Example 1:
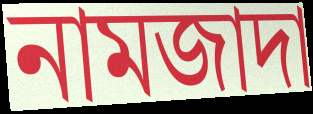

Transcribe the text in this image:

নামজাদা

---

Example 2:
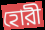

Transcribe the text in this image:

হোরী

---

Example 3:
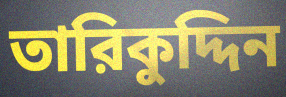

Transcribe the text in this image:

তারিকুদ্দিন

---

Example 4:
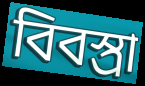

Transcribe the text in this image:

বিবস্ত্রা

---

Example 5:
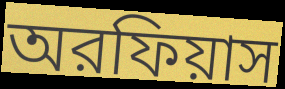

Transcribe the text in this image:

অরফিয়াস